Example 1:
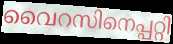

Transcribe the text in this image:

വൈറസിനെപ്പറ്റി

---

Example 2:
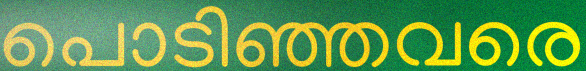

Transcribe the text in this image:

പൊടിഞ്ഞവരെ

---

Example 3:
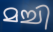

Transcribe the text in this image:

മച്ചി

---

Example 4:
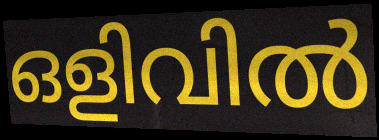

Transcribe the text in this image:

ഒളിവിൽ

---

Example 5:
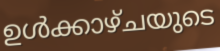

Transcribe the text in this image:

ഉൾക്കാഴ്ചയുടെ